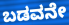
ಬಡವನೇ